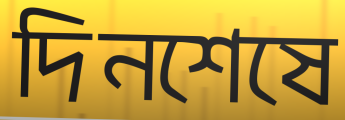
দিনশেষে